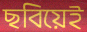
ছবিয়েই